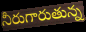
నీరుగారుతున్న